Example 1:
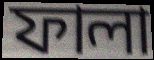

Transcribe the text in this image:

ফালা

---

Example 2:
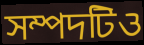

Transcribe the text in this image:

সম্পদটিও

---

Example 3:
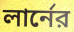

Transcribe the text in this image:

লার্নের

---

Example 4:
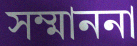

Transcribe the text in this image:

সম্মাননা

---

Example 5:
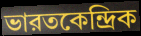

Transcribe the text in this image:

ভারতকেন্দ্রিক